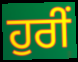
ਹੁਰੀਂ